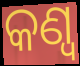
କଣ୍ୱ